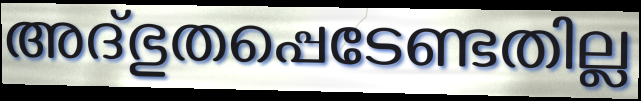
അദ്ഭുതപ്പെടേണ്ടതില്ല